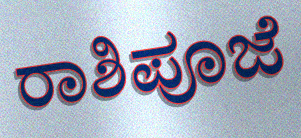
ರಾಶಿಪೂಜೆ